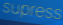
supress